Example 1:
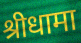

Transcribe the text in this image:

श्रीधामा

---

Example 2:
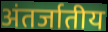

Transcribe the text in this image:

अंतर्जातीय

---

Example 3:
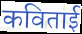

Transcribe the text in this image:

कविताई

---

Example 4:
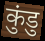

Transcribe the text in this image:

कुंडु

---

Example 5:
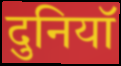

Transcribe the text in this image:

दुनियॉ